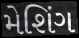
મેશિંગ